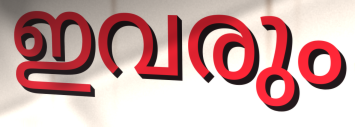
ഇവരും